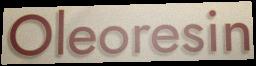
Oleoresin